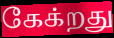
கேக்றது